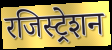
रजिस्ट्रेशन